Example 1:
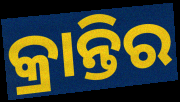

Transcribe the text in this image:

କ୍ରାନ୍ତିର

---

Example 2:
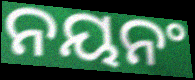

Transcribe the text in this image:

ନୟନଂ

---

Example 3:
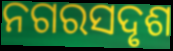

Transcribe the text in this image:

ନଗରସଦୃଶ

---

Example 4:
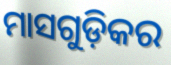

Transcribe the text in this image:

ମାସଗୁଡ଼ିକର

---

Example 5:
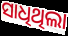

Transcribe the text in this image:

ସାଧିଥିଲା